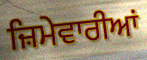
ਜ਼ਿਮੇਵਾਰੀਆਂ